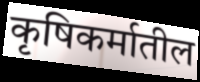
कृषिकर्मातील